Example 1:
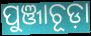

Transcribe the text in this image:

ପୁଞ୍ଜାଚୂଡ଼ା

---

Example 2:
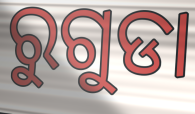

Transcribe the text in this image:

ରୁଗୁଡା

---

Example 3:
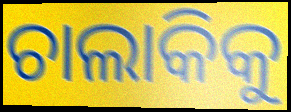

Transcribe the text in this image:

ଚାଲାକିକୁ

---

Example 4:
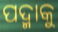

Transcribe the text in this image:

ପଦ୍ମାକୁ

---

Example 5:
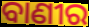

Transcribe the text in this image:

ବାଣୀର